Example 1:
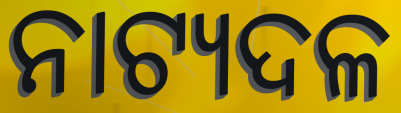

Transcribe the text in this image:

ନାଟ୍ୟଦଳ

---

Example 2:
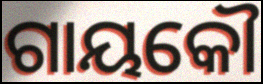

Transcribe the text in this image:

ଗାୟକୌ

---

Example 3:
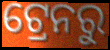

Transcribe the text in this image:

ଟ୍ରେନରୁ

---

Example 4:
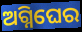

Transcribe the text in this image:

ଅଗ୍ନିଘେର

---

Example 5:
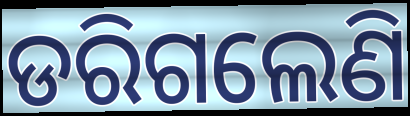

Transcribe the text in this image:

ଡରିଗଲେଣି